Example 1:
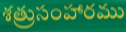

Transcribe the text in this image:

శత్రుసంహారము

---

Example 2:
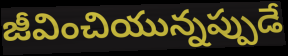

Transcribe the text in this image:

జీవించియున్నప్పుడే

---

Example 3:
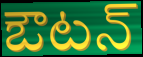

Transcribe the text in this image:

ఔటన్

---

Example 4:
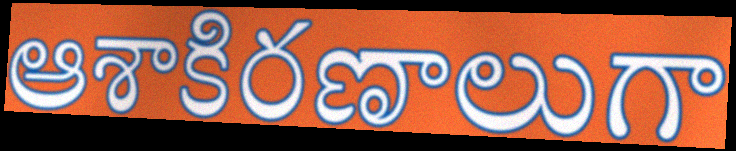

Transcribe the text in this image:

ఆశాకిరణాలుగా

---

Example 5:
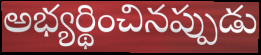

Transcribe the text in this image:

అభ్యర్థించినప్పుడు